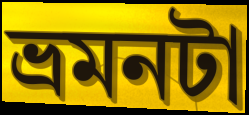
ভ্রমনটা